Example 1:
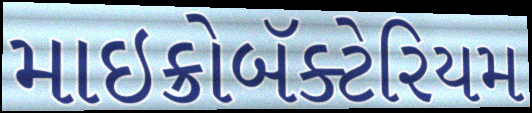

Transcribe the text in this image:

માઇક્રોબૅક્ટેરિયમ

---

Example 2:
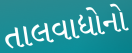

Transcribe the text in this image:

તાલવાદ્યોનો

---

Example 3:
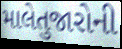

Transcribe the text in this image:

માલેતુજારોની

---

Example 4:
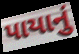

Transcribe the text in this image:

પાયાનું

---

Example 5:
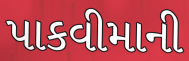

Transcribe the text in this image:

પાકવીમાની